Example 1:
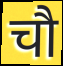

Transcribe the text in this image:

चौ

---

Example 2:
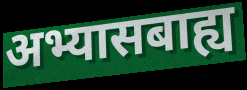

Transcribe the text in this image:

अभ्यासबाह्य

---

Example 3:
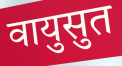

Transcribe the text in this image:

वायुसुत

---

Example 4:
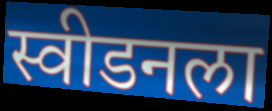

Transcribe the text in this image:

स्वीडनला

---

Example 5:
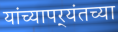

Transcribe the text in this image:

यांच्यापर्यंतच्या